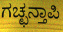
ಗಚ್ಛನ್ತಾಪಿ